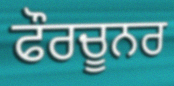
ਫੌਰਚੂਨਰ